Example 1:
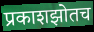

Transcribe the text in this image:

प्रकाशझोतच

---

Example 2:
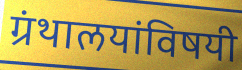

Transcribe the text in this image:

ग्रंथालयांविषयी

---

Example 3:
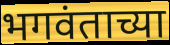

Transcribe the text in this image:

भगवंताच्या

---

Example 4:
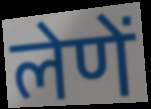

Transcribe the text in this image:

लेणें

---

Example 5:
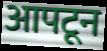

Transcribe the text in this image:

आपटून